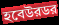
হবেউরডর